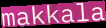
makkala